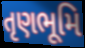
તૃણભૂમિ